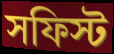
সফিস্ট